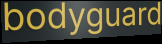
bodyguard